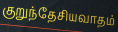
குறுந்தேசியவாதம்